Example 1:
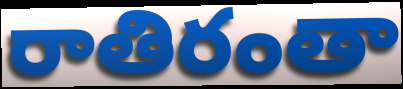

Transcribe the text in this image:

రాతిరంతా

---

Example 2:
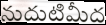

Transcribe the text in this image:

నుదుటిమీద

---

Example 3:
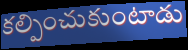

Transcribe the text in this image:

కల్పించుకుంటాడు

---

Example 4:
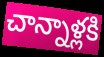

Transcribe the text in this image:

చాన్నాళ్లకి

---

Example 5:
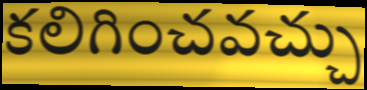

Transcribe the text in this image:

కలిగించవచ్చు